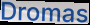
Dromas